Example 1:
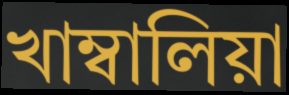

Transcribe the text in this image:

খাম্বালিয়া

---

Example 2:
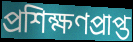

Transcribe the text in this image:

প্ৰশিক্ষণপ্ৰাপ্ত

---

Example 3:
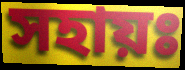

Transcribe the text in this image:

সহায়ঃ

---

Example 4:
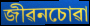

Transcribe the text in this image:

জীৱনচোৱা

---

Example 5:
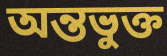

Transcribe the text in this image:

অন্তভুক্ত